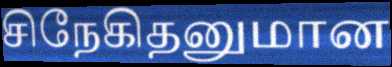
சிநேகிதனுமான